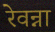
रेवन्ना